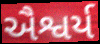
ઐશ્વર્ય